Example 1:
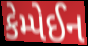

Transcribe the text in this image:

કેમ્પેઈન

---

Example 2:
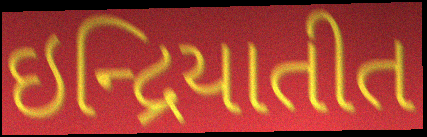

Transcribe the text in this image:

ઇન્દ્રિયાતીત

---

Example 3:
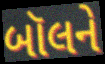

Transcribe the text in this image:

બૉલને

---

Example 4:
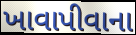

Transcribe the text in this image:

ખાવાપીવાના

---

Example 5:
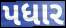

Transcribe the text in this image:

પધાર